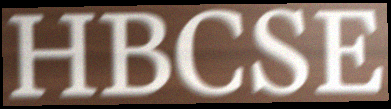
HBCSE